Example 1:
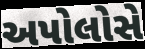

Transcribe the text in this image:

અપોલોસે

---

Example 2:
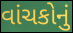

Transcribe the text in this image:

વાંચકોનું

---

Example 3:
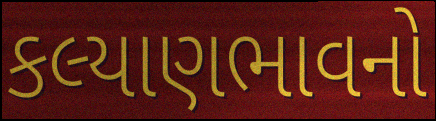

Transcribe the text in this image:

કલ્યાણભાવનો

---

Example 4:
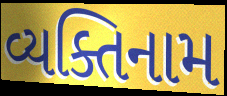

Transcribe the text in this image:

વ્યક્તિનામ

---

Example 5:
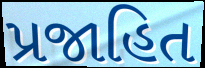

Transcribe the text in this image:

પ્રજાહિત